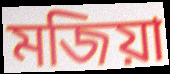
মজিয়া